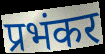
प्रभंकर